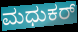
ಮಧುಕರ್